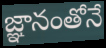
జ్ఞానంతోనే